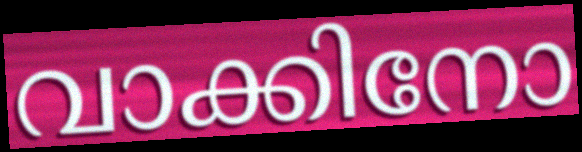
വാക്കിനോ